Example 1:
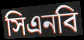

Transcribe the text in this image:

সিএনবি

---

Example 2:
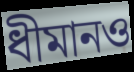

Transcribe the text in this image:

ধীমানও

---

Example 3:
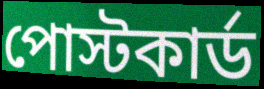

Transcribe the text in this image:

পোস্টকার্ড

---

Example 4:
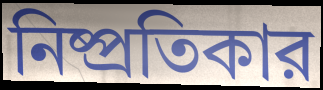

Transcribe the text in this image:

নিষ্প্রতিকার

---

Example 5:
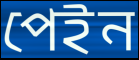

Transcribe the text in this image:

পেইন